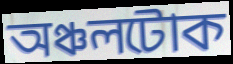
অঞ্চলটোক